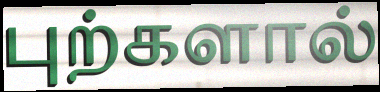
புற்களால்